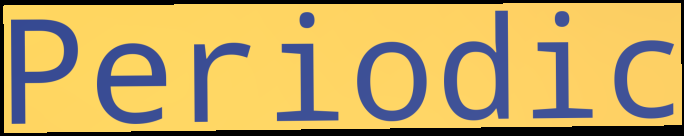
Periodic